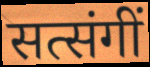
सत्संगीं